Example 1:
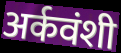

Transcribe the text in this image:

अर्कवंशी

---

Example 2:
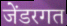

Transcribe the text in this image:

जेंडरगत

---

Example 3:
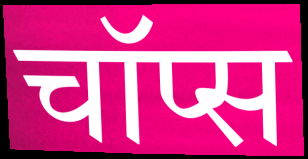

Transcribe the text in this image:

चॉप्स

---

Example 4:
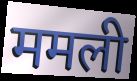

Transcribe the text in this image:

ममली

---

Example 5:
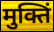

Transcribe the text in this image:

मुक्तिं